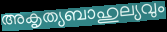
അകൃത്യബാഹുല്യവും